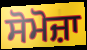
ਸੋਮੋਜ਼ਾ